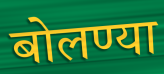
बोलण्या